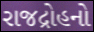
રાજદ્રોહનો